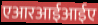
एआरआईआईए